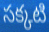
సక్కటి